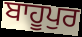
ਬਾਹੂਪੁਰ